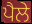
ਪੈਲੇ